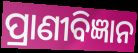
ପ୍ରାଣୀବିଜ୍ଞାନ